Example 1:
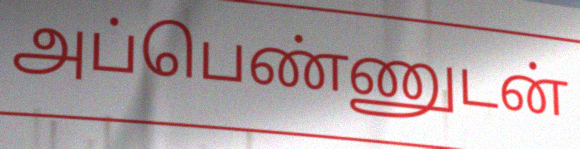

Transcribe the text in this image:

அப்பெண்ணுடன்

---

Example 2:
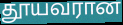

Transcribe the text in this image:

தூயவரான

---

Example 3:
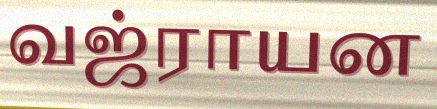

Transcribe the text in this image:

வஜ்ராயன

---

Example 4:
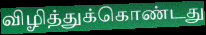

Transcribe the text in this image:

விழித்துக்கொண்டது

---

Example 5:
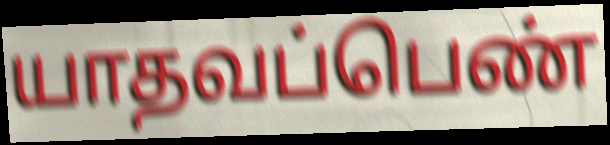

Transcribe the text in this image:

யாதவப்பெண்